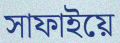
সাফাইয়ে